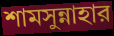
শামসুন্নাহার